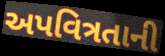
અપવિત્રતાની